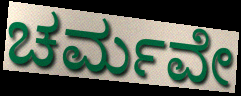
ಚರ್ಮವೇ